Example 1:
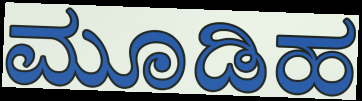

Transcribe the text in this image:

ಮೂಡಿಹ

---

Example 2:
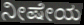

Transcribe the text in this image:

ನೀಷೇಯ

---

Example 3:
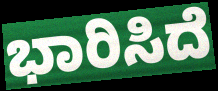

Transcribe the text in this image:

ಭಾರಿಸಿದೆ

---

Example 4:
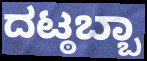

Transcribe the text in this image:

ದಟ್ಠಬ್ಬಾ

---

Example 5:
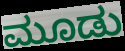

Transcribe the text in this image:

ಮೂಡು